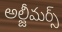
అల్జీమర్స్